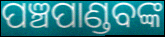
ପଞ୍ଚପାଣ୍ଡବଙ୍କ